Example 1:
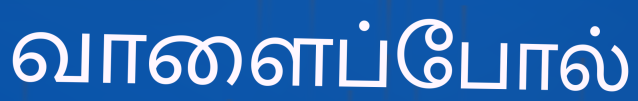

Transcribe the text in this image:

வாளைப்போல்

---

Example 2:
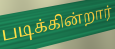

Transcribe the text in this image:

படிக்கின்றார்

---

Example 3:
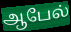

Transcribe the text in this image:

ஆபேல்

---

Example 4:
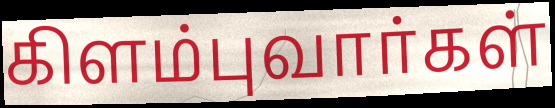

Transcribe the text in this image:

கிளம்புவார்கள்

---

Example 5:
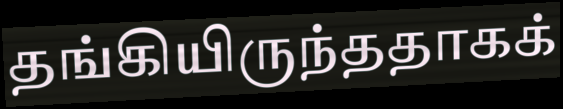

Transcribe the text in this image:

தங்கியிருந்ததாகக்